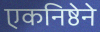
एकनिष्ठेने